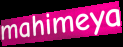
mahimeya